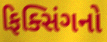
ફિક્સિંગનો